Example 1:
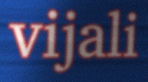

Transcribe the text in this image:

vijali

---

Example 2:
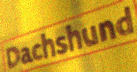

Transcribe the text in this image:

Dachshund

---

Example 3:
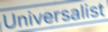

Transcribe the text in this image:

Universalist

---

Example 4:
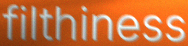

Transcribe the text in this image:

filthiness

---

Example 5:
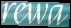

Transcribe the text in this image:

rewa